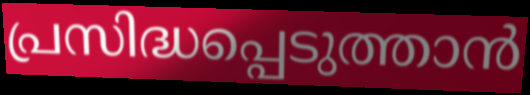
പ്രസിദ്ധപ്പെടുത്താൻ